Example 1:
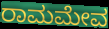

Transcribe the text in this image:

ರಾಮಮೇವ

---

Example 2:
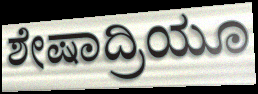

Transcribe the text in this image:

ಶೇಷಾದ್ರಿಯೂ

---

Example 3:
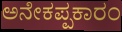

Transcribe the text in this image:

ಅನೇಕಪ್ಪಕಾರಂ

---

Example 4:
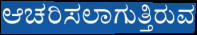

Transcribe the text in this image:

ಆಚರಿಸಲಾಗುತ್ತಿರುವ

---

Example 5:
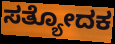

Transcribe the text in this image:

ಸತ್ಯೋದಕ